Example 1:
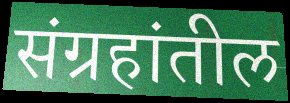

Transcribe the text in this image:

संग्रहांतील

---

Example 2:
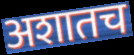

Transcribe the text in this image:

अशातच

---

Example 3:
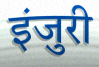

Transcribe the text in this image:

इंजुरी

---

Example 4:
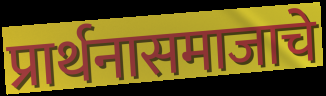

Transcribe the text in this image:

प्रार्थनासमाजाचे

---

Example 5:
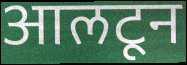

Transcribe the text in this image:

आलटून